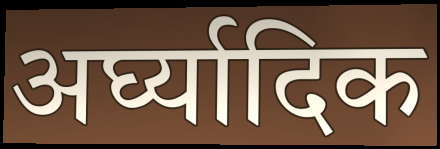
अर्घ्यादिक